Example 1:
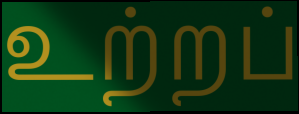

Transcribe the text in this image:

உற்றப்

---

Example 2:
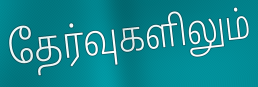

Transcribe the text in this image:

தேர்வுகளிலும்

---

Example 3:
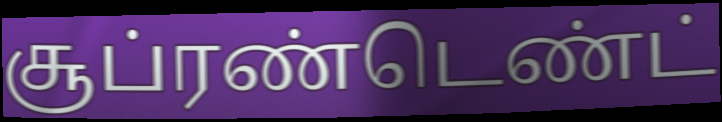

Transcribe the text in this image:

சூப்ரண்டெண்ட்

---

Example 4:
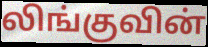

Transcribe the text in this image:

லிங்குவின்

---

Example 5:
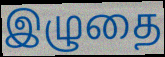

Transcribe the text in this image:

இழுதை